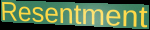
Resentment